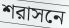
শরাসনে